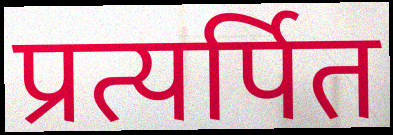
प्रत्यर्पित